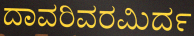
ದಾವರಿವರಮಿರ್ದ